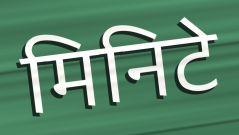
मिनिटे